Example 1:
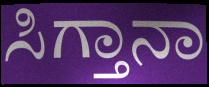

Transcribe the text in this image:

ಸಿಗ್ತಾನಾ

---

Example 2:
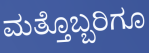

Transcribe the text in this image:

ಮತ್ತೊಬ್ಬರಿಗೂ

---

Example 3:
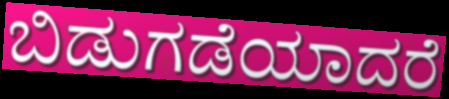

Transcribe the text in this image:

ಬಿಡುಗಡೆಯಾದರೆ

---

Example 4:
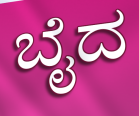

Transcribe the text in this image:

ಬೈದ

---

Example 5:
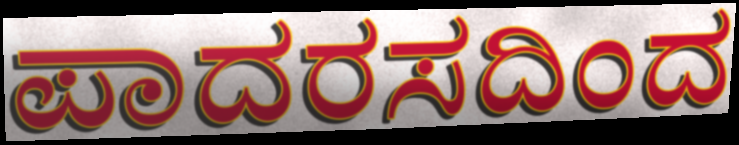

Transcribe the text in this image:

ಪಾದರಸದಿಂದ